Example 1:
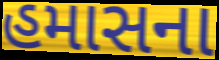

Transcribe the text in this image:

હમાસના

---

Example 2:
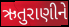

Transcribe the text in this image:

ઋતુરાણીને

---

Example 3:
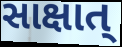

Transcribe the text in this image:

સાક્ષાત્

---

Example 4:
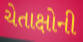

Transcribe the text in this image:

ચેતાક્ષોની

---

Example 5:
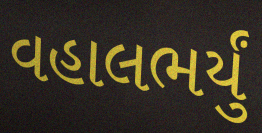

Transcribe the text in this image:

વહાલભર્યું